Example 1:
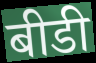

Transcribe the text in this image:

बीडी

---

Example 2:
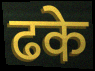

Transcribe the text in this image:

ढके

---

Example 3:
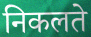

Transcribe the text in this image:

निकलते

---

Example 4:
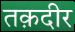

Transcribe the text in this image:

तक़दीर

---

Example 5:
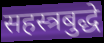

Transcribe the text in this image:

सहस्त्रबुद्धे